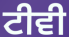
ਟੀਵੀ